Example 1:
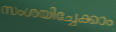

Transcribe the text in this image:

സംശയിച്ചേക്കാം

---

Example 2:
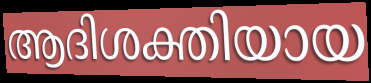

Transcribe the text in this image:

ആദിശക്തിയായ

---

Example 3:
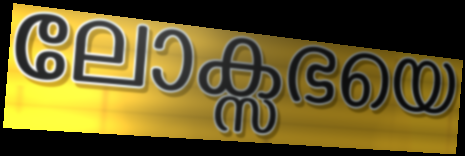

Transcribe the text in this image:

ലോക്സഭയെ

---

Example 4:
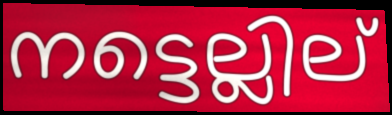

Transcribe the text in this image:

നട്ടെല്ലില്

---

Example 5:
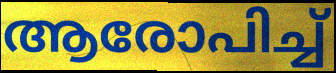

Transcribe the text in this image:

ആരോപിച്ച്